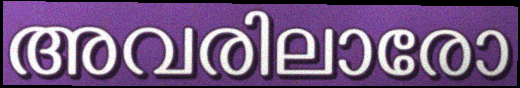
അവരിലാരോ